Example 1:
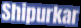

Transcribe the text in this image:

Shipurkar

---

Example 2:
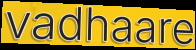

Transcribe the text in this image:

vadhaare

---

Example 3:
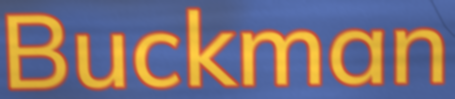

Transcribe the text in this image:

Buckman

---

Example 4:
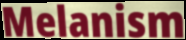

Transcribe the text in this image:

Melanism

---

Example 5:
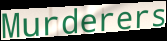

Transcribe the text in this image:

Murderers